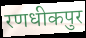
रणधीकपुर